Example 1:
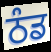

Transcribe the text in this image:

ਠੰਡ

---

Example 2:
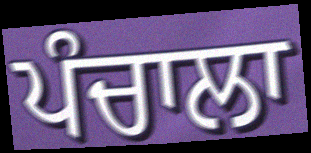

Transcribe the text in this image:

ਪੰਚਾਲਾ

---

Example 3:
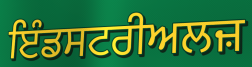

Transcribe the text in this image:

ਇੰਡਸਟਰੀਅਲਜ਼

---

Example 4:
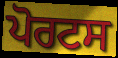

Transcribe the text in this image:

ਪੋਰਟਸ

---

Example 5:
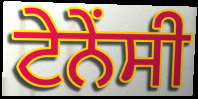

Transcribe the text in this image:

ਟੇਨੇਂਸੀ